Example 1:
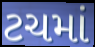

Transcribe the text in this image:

ટચમાં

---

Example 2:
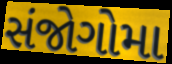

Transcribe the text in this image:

સંજોગોમા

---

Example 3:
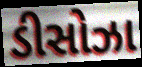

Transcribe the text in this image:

ડીસોઝા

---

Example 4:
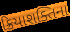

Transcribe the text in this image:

ક્રિયાશક્તિના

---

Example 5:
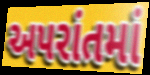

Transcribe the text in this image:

અપરાંતમાં